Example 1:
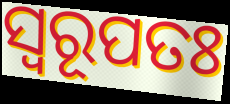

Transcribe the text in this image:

ସ୍ଵରୂପତଃ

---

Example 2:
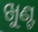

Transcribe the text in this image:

ଖୁଣ୍ଟ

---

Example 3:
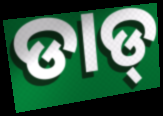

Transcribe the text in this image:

ଡାଡ୍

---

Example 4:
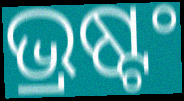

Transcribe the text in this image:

ଭ୍ରଷ୍ଟଂ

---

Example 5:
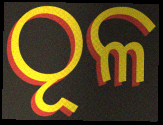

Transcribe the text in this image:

ଠୂଳ